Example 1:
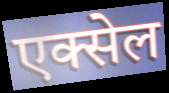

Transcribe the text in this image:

एक्‍सेल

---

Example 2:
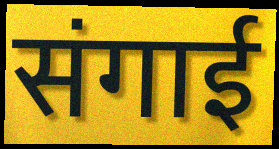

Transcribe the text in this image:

संगाई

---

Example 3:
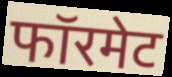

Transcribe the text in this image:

फॉरमेट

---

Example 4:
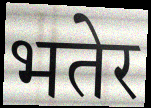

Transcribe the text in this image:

भतेर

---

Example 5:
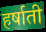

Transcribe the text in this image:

हर्षाती